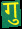
गु